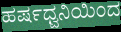
ಹರ್ಷಧ್ವನಿಯಿಂದ